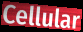
Cellular